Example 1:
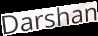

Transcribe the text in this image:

Darshan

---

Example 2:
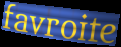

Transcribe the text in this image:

favroite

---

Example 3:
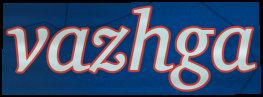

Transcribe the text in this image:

vazhga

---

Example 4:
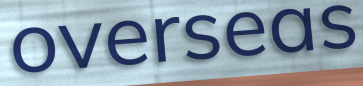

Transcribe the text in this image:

overseas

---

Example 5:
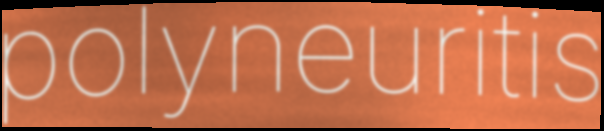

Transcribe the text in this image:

polyneuritis